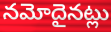
నమోదైనట్లు